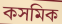
কসমিক